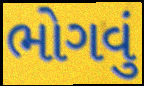
ભોગવું